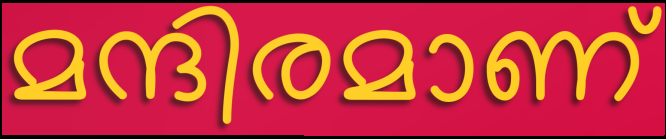
മന്ദിരമാണ്